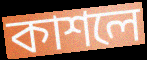
কাশলে